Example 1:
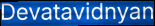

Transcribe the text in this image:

Devatavidnyan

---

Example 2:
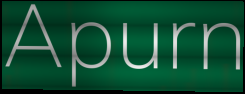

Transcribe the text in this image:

Apurn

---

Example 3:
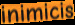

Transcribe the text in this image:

inimicis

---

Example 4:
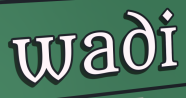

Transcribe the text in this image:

wadi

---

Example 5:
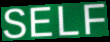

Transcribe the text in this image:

SELF